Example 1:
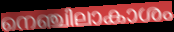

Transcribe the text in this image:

നെഞ്ചിലാകാശം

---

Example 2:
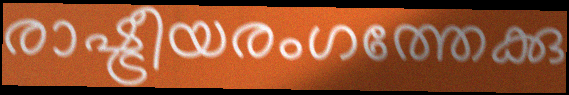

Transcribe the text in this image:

രാഷ്ട്രീയരംഗത്തേക്കു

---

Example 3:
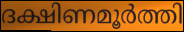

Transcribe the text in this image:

ദക്ഷിണമൂർത്തി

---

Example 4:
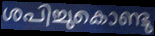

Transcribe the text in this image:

ശപിച്ചുകൊണ്ടു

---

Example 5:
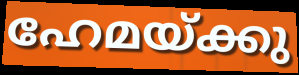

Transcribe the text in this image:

ഹേമയ്ക്കു